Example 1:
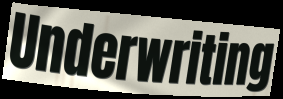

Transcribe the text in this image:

Underwriting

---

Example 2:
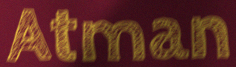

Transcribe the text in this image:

Atman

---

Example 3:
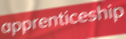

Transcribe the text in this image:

apprenticeship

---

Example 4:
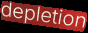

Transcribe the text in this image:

depletion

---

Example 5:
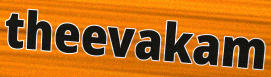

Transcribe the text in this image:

theevakam